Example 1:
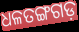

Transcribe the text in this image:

ଧଳତଙ୍ଗଗଡ଼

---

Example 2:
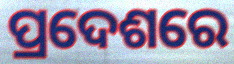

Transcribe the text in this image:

ପ୍ରଦେଶରେ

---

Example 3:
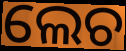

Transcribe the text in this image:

ଲେଚ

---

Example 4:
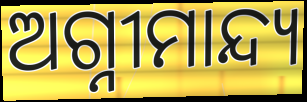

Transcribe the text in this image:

ଅଗ୍ନୀମାନ୍ଦ୍ୟ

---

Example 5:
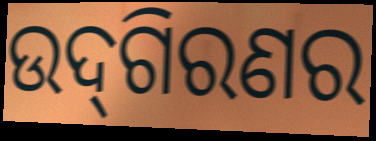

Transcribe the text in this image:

ଉଦ୍‌ଗିରଣର